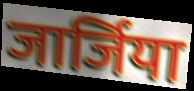
जार्जिया